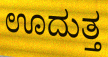
ಊದುತ್ತ